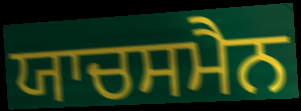
ਯਾਚਸਮੈਨ